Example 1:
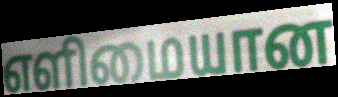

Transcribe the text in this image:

எளிமையான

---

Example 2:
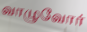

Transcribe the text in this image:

வாழுவோர்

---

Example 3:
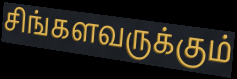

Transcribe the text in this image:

சிங்களவருக்கும்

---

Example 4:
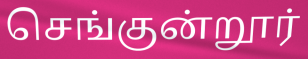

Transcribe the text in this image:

செங்குன்றூர்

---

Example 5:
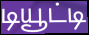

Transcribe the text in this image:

டியூட்டி